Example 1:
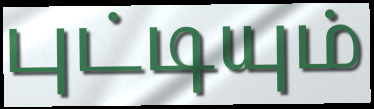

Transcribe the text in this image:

புட்டியும்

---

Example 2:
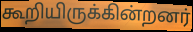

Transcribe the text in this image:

கூறியிருக்கின்றனர்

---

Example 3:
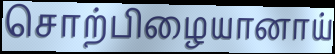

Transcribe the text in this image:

சொற்பிழையானாய்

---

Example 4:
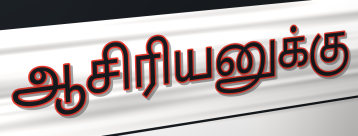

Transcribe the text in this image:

ஆசிரியனுக்கு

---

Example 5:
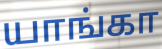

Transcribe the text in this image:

யாங்கா